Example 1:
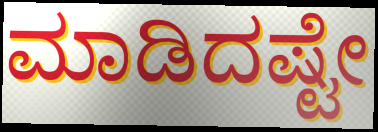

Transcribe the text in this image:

ಮಾಡಿದಷ್ಟೇ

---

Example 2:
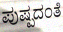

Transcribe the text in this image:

ಪುಷ್ಪದಂತೆ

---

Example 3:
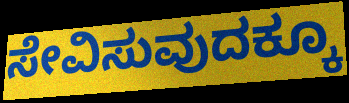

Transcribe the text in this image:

ಸೇವಿಸುವುದಕ್ಕೂ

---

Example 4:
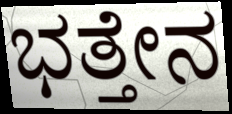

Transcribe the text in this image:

ಭತ್ತೇನ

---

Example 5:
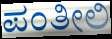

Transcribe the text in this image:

ಪಂತೀಲಿ